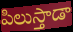
పిలుస్తాడా